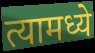
त्यामध्ये